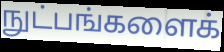
நுட்பங்களைக்